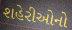
શહેરીઓનો